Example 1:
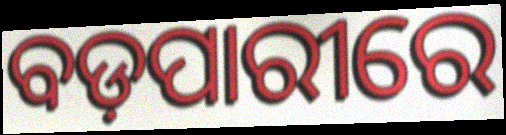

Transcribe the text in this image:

ବଡ଼ପାରୀରେ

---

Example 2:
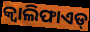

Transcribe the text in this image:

କ୍ୱାଲିଫାଏଡ୍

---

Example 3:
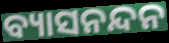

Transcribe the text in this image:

ବ୍ୟାସନନ୍ଦନ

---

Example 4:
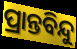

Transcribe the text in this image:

ପ୍ରାନ୍ତବିନ୍ଦୁ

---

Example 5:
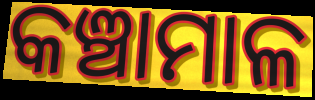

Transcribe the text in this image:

କଞ୍ଚାମାଳ